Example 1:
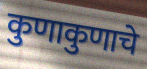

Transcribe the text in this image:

कुणाकुणाचे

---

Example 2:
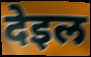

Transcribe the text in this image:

देइल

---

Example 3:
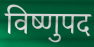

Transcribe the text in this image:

विष्णुपद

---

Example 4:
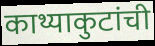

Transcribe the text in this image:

काथ्याकुटांची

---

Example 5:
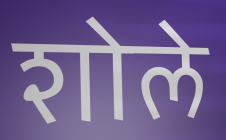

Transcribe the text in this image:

शोले